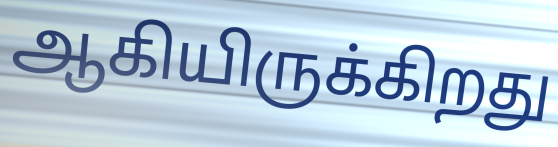
ஆகியிருக்கிறது